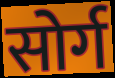
सोर्ग